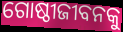
ଗୋଷ୍ଠୀଜୀବନକୁ